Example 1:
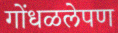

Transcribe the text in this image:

गोंधळलेपण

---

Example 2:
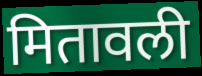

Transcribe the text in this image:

मितावली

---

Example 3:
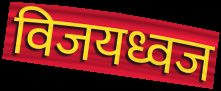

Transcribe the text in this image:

विजयध्वज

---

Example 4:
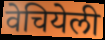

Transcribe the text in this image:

वेचियेली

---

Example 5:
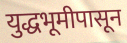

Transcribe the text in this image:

युद्धभूमीपासून